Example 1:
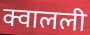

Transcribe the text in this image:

क्वालली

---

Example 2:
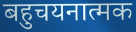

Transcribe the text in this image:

बहुचयनात्मक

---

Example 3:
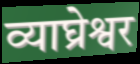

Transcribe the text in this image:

व्याघ्रेश्वर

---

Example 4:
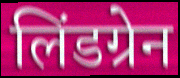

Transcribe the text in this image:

लिंडग्रेन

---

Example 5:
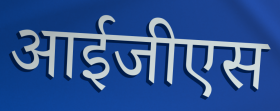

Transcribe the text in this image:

आईजीएस